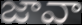
జావా